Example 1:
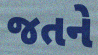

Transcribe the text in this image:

જતને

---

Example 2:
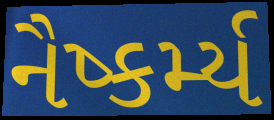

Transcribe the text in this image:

નૈષ્કર્મ્ય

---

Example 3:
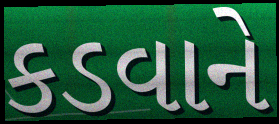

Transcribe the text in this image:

કડવાને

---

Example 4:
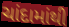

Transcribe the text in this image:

ચાંદામાંથી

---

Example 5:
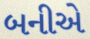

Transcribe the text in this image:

બનીએ